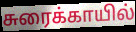
சுரைக்காயில்